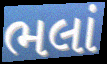
ભલાં